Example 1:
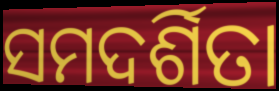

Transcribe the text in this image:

ସମଦର୍ଶିତା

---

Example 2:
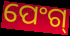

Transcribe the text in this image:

ପେଂଗ୍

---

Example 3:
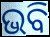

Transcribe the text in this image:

ଭବି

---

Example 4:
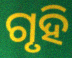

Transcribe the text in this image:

ଗୃହି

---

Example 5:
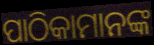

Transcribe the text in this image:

ପାଠିକାମାନଙ୍କ